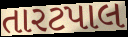
તારટપાલ